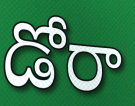
డోరా